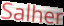
Salher